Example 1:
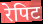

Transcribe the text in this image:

रेपिट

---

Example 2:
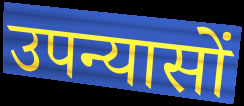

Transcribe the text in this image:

उपन्यासों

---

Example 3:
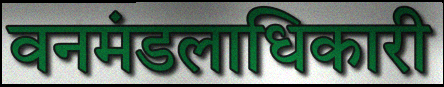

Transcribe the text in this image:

वनमंडलाधिकारी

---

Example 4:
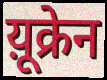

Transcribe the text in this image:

य़ूक्रेन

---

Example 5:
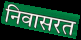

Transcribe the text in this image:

निवासरत